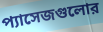
প্যাসেজগুলোর